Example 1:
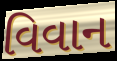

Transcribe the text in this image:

વિવાન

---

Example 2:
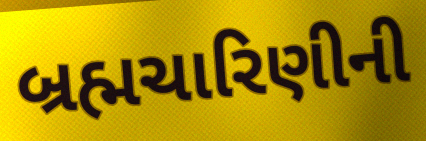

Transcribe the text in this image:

બ્રહ્મચારિણીની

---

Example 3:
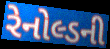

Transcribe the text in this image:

રેનોલ્ડની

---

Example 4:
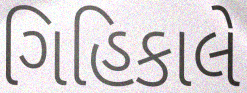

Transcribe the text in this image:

ગિહિકાલે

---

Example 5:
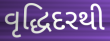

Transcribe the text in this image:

વૃદ્ધિદરથી